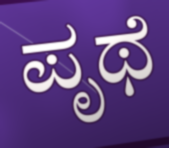
ಪೃಥೆ